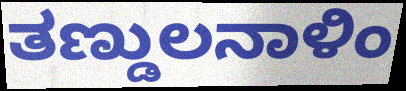
ತಣ್ಡುಲನಾಳಿಂ